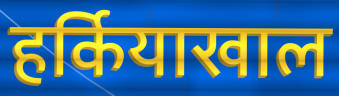
हर्कियाखाल